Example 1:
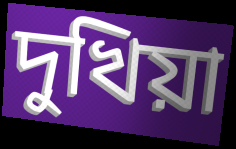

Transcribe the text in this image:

দুখিয়া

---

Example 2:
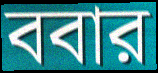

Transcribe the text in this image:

ববার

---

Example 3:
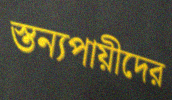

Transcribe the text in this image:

স্তন্যপায়ীদের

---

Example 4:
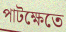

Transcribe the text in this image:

পাটক্ষেতে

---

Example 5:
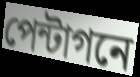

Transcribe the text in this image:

পেন্টাগনে